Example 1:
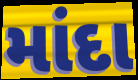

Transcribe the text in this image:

માંદા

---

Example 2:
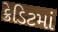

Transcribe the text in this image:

ક્રેડિટમાં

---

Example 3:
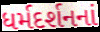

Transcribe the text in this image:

ધર્મદર્શનનાં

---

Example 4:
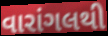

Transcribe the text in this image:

વારાંગલથી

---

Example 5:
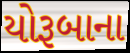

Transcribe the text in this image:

યોરૂબાના